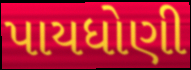
પાયધોણી